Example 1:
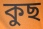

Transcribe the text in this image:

কুছ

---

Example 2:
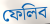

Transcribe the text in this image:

ফেলিব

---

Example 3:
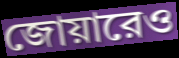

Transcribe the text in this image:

জোয়ারেও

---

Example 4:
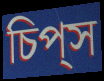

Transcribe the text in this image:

চিপ্‌স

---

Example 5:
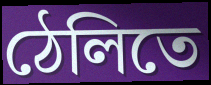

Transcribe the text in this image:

ঠেলিতে